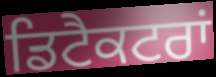
ਡਿਟੈਕਟਰਾਂ